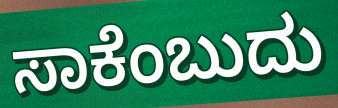
ಸಾಕೆಂಬುದು